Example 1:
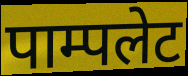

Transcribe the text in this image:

पाम्पलेट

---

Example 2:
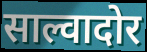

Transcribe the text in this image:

साल्वादोर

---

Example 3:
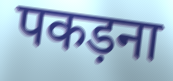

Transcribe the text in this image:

पकड़ना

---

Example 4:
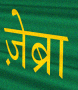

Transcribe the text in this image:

ज़ेब्रा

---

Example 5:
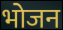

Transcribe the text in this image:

भोजन